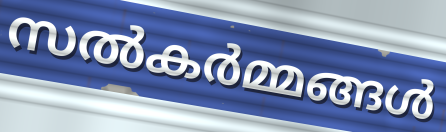
സൽകർമ്മങ്ങൾ